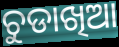
ଚୁଡାଖିଆ